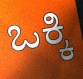
ಒಕ್ಕಿ